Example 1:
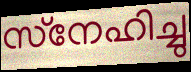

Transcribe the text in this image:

സ്‌നേഹിച്ചു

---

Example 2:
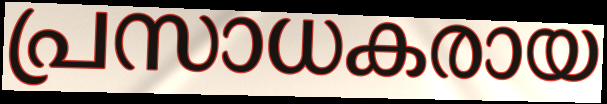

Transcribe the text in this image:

പ്രസാധകരായ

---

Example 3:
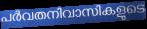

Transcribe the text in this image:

പർവതനിവാസികളുടെ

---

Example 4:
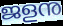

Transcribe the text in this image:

ജളനു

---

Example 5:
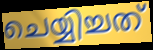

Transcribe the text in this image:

ചെയ്യിച്ചത്